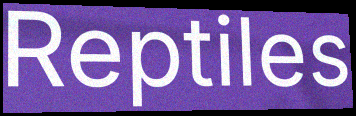
Reptiles